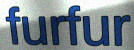
furfur